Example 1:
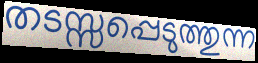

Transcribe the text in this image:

തടസ്സപ്പെടുത്തുന്ന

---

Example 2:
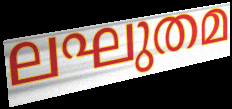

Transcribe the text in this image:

ലഘുതമ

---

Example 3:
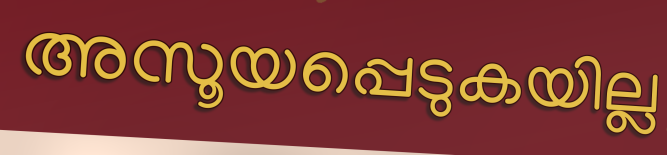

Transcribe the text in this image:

അസൂയപ്പെടുകയില്ല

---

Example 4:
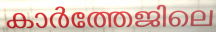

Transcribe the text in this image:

കാർത്തേജിലെ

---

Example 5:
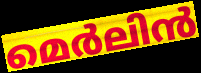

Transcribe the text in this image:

മെർലിൻ